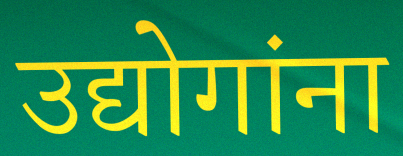
उद्योगांना